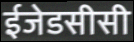
ईजेडसीसी